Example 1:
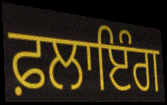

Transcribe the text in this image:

ਫ਼ਲਾਇੰਗ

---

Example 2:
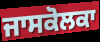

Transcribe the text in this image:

ਜਾਸਕੋਲਕਾ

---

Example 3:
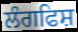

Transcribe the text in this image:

ਲੰਗਫਿਸ਼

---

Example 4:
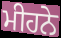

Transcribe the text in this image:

ਮੀਹਨੇ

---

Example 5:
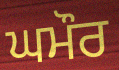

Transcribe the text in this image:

ਘਮੌਰ